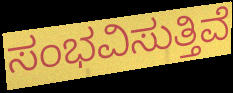
ಸಂಭವಿಸುತ್ತಿವೆ